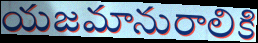
యజమానురాలికి